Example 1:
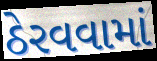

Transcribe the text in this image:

ઠેરવવામાં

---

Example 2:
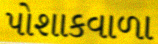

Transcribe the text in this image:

પોશાકવાળા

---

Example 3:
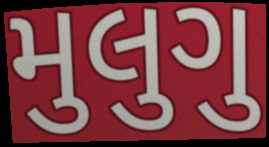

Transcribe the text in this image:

મુલુગુ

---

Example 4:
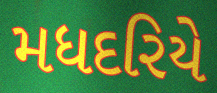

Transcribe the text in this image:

મધદરિયે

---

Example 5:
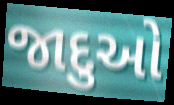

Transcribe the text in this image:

જાદુઓ